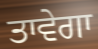
ਤਾਵੇਗਾ